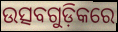
ଉତ୍ସବଗୁଡ଼ିକରେ